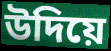
উদিয়ে